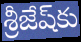
శ్రీజేష్‌కు